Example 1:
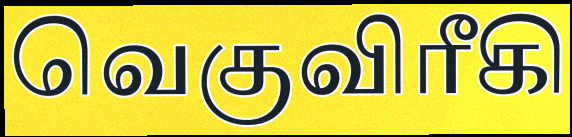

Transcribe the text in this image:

வெகுவிரீகி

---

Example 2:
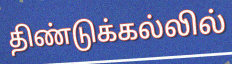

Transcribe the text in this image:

திண்டுக்கல்லில்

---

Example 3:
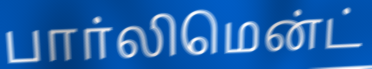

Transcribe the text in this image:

பார்லிமென்ட்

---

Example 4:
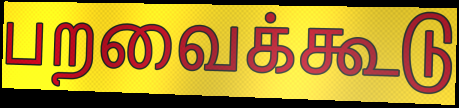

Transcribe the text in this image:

பறவைக்கூடு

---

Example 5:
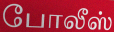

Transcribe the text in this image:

போலீஸ்